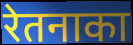
रेतनाका